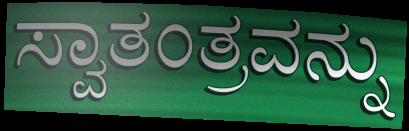
ಸ್ವಾತಂತ್ರವನ್ನು